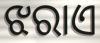
ଝରାଏ